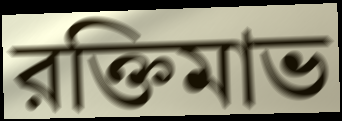
রক্তিমাভ